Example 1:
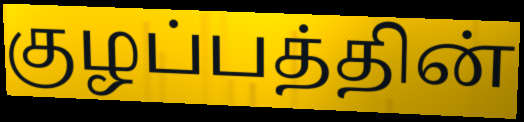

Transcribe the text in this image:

குழப்பத்தின்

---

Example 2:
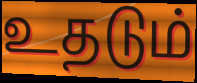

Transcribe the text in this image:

உதடும்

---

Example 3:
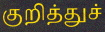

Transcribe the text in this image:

குறித்துச்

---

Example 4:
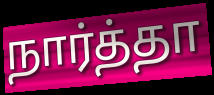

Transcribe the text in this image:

நார்த்தா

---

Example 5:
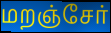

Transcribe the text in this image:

மறஞ்சேர்